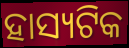
ହାସ୍ୟଟିକ